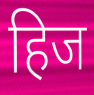
हिज